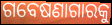
ଗବେଷଣାଗାରକୁ